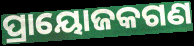
ପ୍ରାୟୋଜକଗଣ